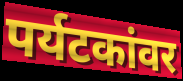
पर्यटकांवर